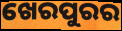
ଖେରପୁରର